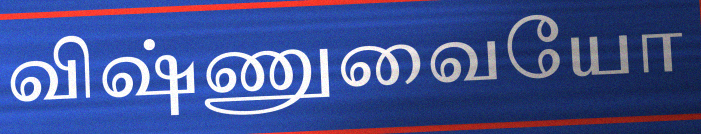
விஷ்ணுவையோ